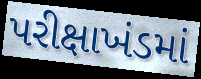
પરીક્ષાખંડમાં